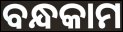
ବନ୍ଧକାମ